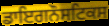
ਡਾਇਗਨੌਸਟਿਕਸ